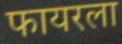
फायरला